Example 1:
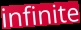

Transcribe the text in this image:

infinite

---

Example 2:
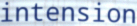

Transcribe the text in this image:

intension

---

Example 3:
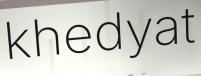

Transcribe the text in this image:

khedyat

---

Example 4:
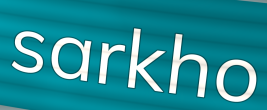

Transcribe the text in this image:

sarkho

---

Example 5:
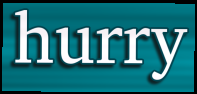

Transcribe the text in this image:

hurry